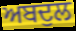
ਅਬਦੁਲ